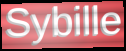
Sybille